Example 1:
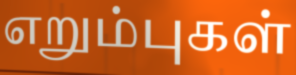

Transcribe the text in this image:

எறும்புகள்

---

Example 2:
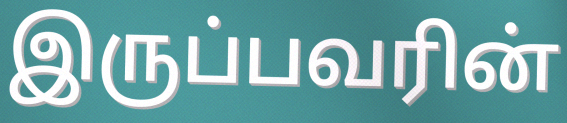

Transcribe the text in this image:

இருப்பவரின்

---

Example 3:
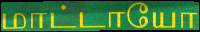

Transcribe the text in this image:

மாட்டாயோ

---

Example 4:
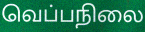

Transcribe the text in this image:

வெப்பநிலை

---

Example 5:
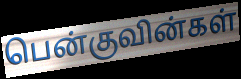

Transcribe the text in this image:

பென்குவின்கள்